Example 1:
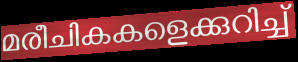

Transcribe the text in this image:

മരീചികകളെക്കുറിച്ച്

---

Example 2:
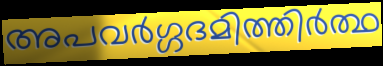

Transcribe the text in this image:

അപവർഗ്ഗദമിത്തിർത്ഥ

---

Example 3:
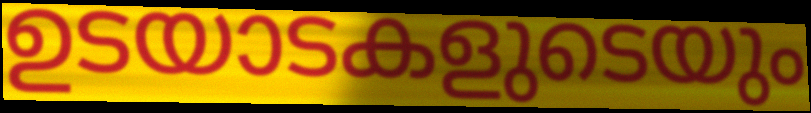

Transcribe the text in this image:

ഉടയാടകളുടെയും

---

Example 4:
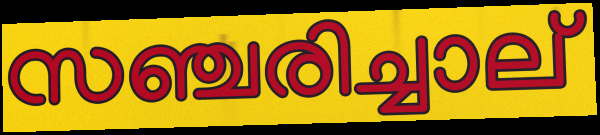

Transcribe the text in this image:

സഞ്ചരിച്ചാല്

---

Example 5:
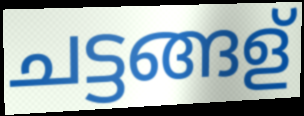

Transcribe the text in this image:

ചട്ടങ്ങള്